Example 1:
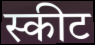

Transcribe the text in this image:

स्कीट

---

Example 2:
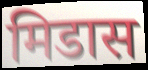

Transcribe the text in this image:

मिडास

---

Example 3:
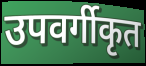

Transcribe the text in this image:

उपवर्गीकृत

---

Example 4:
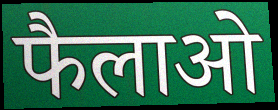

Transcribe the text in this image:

फैलाओ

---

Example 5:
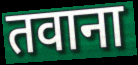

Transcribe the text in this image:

तवाना